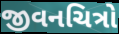
જીવનચિત્રો